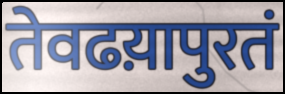
तेवढय़ापुरतं